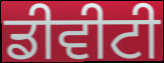
ਡੀਵੀਟੀ